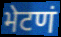
भेटणं